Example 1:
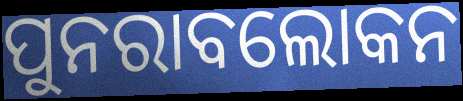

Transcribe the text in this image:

ପୁନରାବଲୋକନ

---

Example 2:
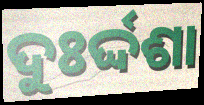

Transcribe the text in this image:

ଦୁଃର୍ଦ୍ଦଶା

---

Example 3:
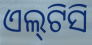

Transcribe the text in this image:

ଏଲ୍‌ଟିସି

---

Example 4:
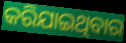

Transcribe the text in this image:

କରିଯାଇଥିବାର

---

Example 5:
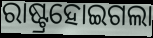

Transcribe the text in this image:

ରାଷ୍ଟ୍ରହୋଇଗଲା